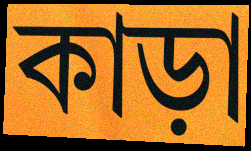
কাড়া